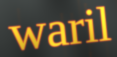
waril